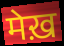
मेख़